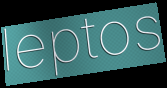
leptos